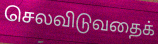
செலவிடுவதைக்